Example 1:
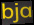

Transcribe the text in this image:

bja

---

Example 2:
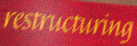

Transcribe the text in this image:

restructuring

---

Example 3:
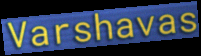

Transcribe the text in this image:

Varshavas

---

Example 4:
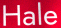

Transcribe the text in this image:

Hale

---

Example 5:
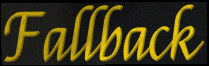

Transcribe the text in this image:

Fallback